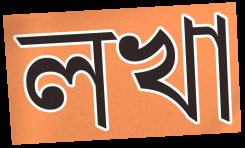
লখা